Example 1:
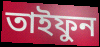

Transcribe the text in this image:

তাইফুন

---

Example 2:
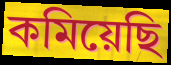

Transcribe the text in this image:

কমিয়েছি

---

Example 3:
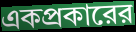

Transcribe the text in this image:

একপ্রকারের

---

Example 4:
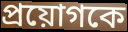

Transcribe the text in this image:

প্রয়োগকে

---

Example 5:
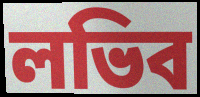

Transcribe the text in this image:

লভিব